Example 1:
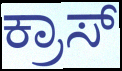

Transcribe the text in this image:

ಕ್ರಾಸ್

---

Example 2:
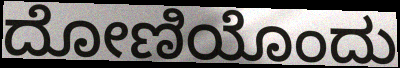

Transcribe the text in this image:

ದೋಣಿಯೊಂದು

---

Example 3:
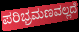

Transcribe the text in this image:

ಪರಿಭ್ರಮಣವಲ್ಲದೆ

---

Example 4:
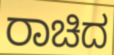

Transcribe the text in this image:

ರಾಚಿದ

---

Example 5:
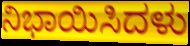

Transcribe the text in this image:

ನಿಭಾಯಿಸಿದಳು